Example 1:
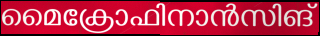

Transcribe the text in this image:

മൈക്രോഫിനാൻസിങ്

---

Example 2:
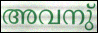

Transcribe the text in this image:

അവനു്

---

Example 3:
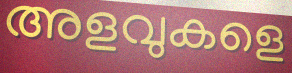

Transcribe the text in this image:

അളവുകളെ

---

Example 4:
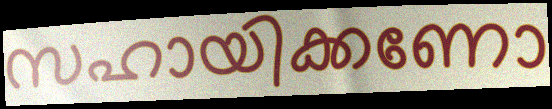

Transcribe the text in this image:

സഹായിക്കണോ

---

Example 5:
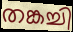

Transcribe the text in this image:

തങ്കച്ചി